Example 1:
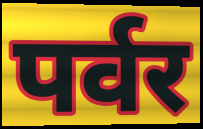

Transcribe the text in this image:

पर्वर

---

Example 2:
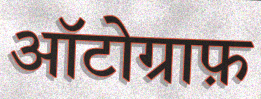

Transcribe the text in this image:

ऑटोग्राफ़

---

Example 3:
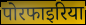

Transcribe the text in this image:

पोरफाइरिया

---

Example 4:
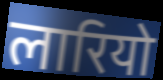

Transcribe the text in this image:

लारियो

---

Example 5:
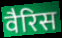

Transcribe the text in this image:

वैरिस